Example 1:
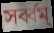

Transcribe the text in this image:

সৰ্ব্বম্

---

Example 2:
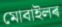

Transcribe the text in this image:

মোবাইলৰ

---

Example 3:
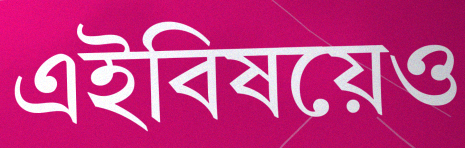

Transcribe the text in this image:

এইবিষয়েও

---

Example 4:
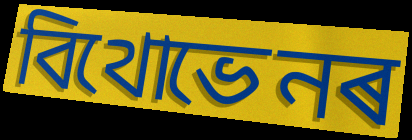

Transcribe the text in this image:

বিথোভেনৰ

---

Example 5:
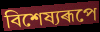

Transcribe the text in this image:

বিশেষ্যৰূপে